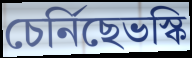
চেৰ্নিছেভস্কি